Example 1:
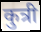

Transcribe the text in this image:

कुत्री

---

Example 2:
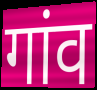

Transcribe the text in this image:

गांव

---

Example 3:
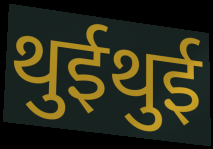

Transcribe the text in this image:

थुईथुई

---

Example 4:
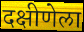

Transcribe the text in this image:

दक्षीणेला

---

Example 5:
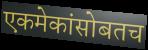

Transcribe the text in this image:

एकमेकांसोबतच